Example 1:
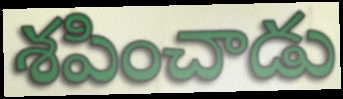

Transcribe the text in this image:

శపించాడు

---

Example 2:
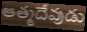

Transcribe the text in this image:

ఆత్మదేవుడు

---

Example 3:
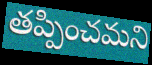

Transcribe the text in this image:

తప్పించమని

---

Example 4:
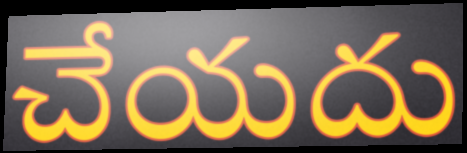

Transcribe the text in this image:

చేయదు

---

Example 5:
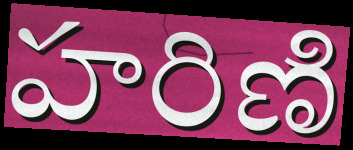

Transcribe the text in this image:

హరిణి